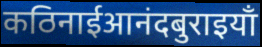
कठिनाईआनंदबुराइयाँ